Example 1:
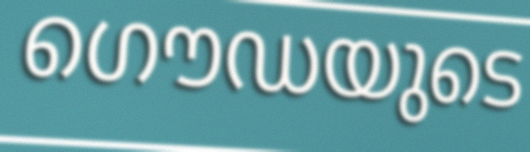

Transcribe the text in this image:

ഗൌഡയുടെ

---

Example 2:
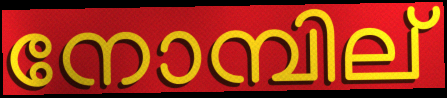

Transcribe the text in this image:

നോമ്പില്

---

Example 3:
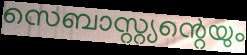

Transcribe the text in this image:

സെബാസ്റ്റ്യന്റെയും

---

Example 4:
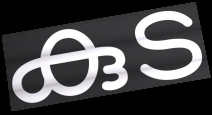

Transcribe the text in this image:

കുട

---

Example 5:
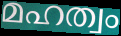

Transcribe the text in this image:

മഹത്വം